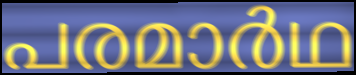
പരമാർഥ